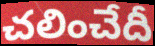
చలించేదీ